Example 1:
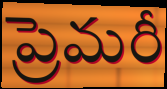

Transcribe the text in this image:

ప్రెమరీ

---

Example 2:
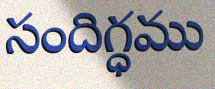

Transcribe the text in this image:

సందిగ్ధము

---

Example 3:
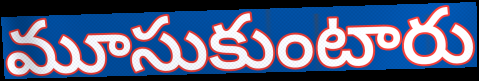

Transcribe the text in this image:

మూసుకుంటారు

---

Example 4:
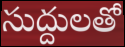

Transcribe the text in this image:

సుద్దులతో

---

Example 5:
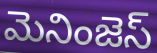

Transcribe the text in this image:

మెనింజెస్